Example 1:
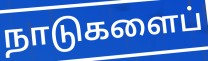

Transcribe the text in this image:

நாடுகளைப்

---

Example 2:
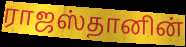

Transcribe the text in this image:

ராஜஸ்தானின்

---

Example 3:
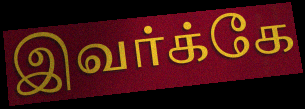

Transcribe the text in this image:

இவர்க்கே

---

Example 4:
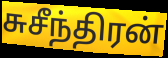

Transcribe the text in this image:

சுசீந்திரன்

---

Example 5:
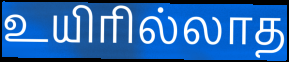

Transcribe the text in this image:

உயிரில்லாத